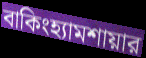
বাকিংহ্যামশায়ার